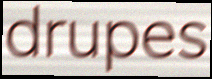
drupes